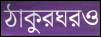
ঠাকুরঘরও